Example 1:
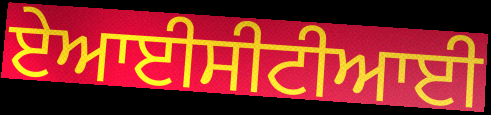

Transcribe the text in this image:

ਏਆਈਸੀਟੀਆਈ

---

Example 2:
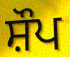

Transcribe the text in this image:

ਸ਼ੌਪ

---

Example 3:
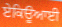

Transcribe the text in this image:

ਏਕਿਊਆਈ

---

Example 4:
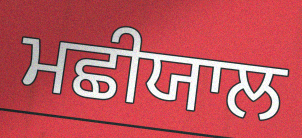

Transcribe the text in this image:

ਮਛੀਯਾਲ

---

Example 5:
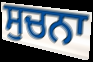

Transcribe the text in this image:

ਸੁਚਨਾ